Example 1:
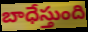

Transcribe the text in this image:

బాధేస్తుంది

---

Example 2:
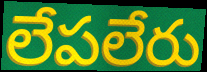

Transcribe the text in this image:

లేపలేరు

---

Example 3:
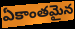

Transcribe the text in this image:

ఏకాంతమైన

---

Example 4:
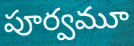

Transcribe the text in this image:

పూర్వమూ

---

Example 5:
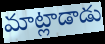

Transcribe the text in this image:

మాట్లాడాడు